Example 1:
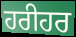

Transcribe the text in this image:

ਹਰੀਹਰ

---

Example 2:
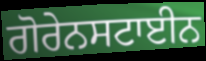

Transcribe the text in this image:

ਗੋਰੇਨਸਟਾਈਨ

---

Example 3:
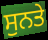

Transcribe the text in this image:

ਸੁਨਤੇ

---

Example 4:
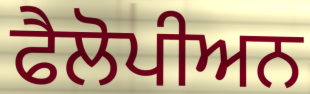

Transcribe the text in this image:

ਫੈਲੋਪੀਅਨ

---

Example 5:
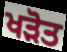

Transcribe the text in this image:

ਖੜੋਤ